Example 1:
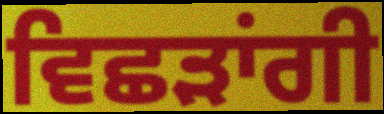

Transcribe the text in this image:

ਵਿਛੜਾਂਗੀ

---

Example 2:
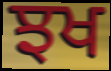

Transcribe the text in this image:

ਝਖ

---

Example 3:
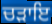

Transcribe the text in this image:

ਚੜਾਇ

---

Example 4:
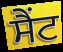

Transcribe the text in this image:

ਸੈਂਟ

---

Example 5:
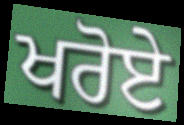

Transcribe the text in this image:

ਖਰੋਏ